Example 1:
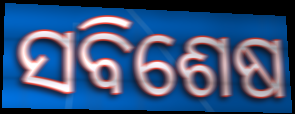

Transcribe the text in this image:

ସବିଶେଷ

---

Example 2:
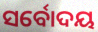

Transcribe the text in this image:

ସର୍ବୋଦୟ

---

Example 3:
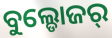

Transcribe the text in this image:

ବୁଲ୍ଡୋଜର୍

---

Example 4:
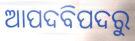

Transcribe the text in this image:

ଆପଦବିପଦରୁ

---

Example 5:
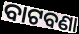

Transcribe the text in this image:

ବାଟବଣା